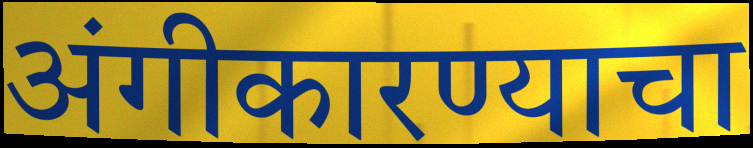
अंगीकारण्याचा